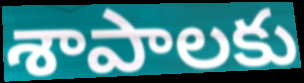
శాపాలకు